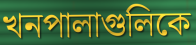
খনপালাগুলিকে